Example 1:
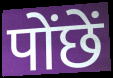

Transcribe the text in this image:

पोंछें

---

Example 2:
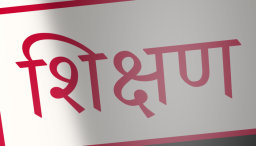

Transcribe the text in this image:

शिक्षण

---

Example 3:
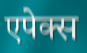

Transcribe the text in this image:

एपेक्स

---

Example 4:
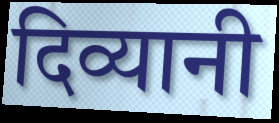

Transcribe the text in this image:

दिव्यानी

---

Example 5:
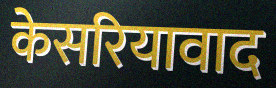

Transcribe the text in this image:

केसरियावाद